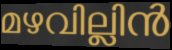
മഴവില്ലിൻ